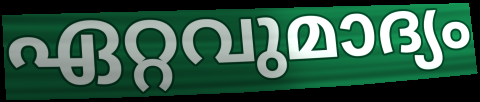
ഏറ്റവുമാദ്യം